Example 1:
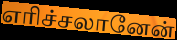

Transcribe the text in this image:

எரிச்சலானேன்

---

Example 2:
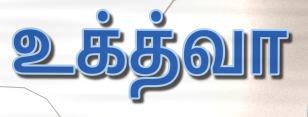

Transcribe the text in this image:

உக்த்வா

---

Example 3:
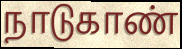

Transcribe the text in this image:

நாடுகாண்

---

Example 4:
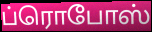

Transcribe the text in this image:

ப்ரொபோஸ்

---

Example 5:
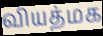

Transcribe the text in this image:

வியத்மக